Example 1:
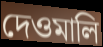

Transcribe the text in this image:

দেওমালি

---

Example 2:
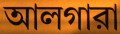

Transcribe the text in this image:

আলগারা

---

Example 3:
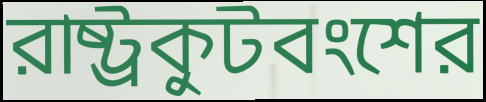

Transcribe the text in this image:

রাষ্ট্রকুটবংশের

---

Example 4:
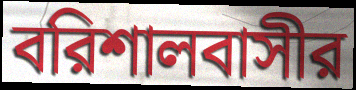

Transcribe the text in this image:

বরিশালবাসীর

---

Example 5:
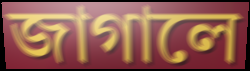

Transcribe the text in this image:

জাগালে